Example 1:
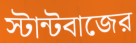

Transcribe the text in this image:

স্টান্টবাজের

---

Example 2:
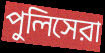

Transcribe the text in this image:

পুলিসেরা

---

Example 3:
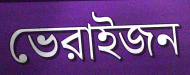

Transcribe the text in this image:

ভেরাইজন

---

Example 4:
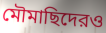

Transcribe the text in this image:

মৌমাছিদেরও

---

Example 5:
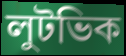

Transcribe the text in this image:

লুটভিক